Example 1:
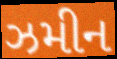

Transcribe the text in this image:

ઝમીન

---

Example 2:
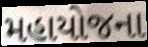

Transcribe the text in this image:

મહાયોજના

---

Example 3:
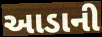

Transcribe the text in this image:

આડાની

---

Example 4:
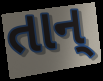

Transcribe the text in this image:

તાન્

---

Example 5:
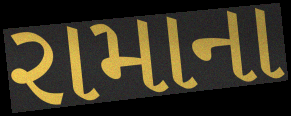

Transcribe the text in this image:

રામાના